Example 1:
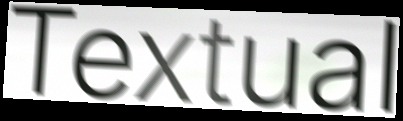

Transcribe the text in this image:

Textual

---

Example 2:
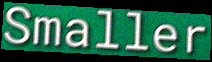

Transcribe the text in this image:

Smaller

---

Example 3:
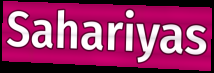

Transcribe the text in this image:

Sahariyas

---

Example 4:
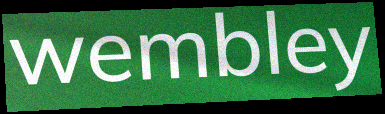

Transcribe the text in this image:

wembley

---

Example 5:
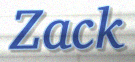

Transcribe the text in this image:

Zack